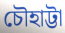
চৌহাট্টা